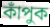
কাঁপুক